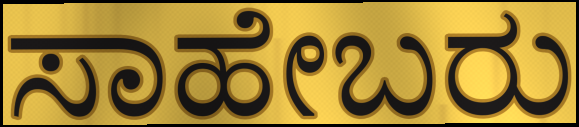
ಸಾಹೇಬರು